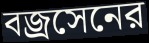
বজ্রসেনের